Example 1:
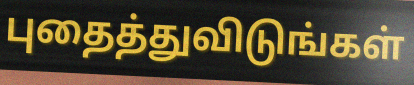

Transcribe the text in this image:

புதைத்துவிடுங்கள்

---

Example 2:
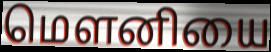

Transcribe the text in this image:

மௌனியை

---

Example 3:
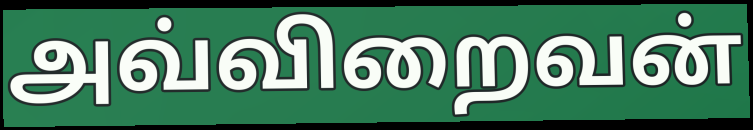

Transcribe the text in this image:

அவ்விறைவன்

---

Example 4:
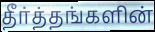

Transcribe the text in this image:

தீர்த்தங்களின்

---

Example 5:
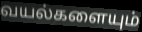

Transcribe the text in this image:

வயல்களையும்